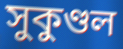
সুকুণ্ডল